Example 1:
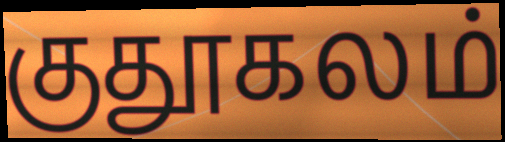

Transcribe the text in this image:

குதூகலம்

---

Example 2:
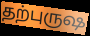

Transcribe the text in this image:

தற்புருஷ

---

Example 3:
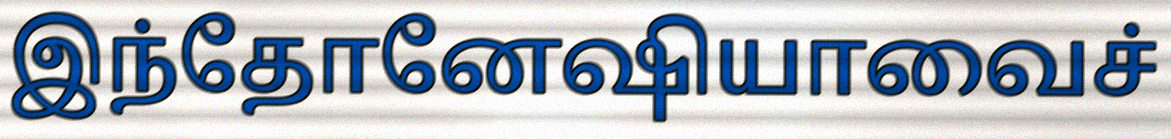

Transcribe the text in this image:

இந்தோனேஷியாவைச்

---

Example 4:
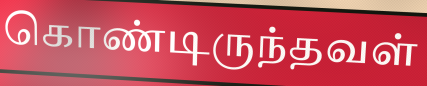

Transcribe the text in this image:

கொண்டிருந்தவள்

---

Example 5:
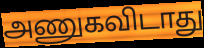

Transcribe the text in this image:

அணுகவிடாது